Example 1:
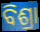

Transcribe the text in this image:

ବିଶ୍ରା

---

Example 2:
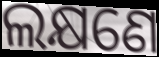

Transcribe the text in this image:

ଲକ୍ଷଣେ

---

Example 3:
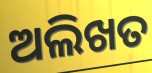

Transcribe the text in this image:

ଅଲିଖତ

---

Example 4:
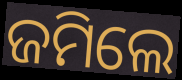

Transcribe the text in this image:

ଜମିଲେ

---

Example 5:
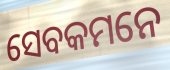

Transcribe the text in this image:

ସେବକମନେ